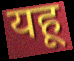
यहू